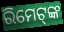
ରିମେଟ୍‍ଙ୍କ